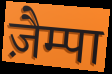
ज़ैम्पा